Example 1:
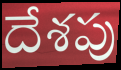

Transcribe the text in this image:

దేశపు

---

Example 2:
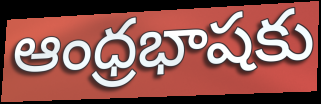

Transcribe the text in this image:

ఆంధ్రభాషకు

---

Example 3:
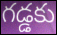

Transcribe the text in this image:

గడ్డకు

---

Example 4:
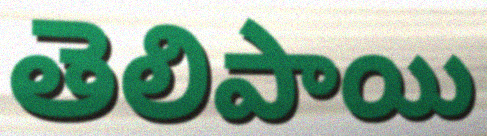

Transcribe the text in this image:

తెలిపాయి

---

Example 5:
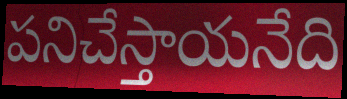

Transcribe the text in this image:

పనిచేస్తాయనేది